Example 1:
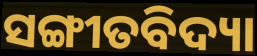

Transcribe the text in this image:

ସଙ୍ଗୀତବିଦ୍ୟା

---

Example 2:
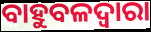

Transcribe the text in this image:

ବାହୁବଳଦ୍ୱାରା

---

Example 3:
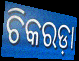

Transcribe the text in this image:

ଚିକରଡ଼ା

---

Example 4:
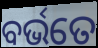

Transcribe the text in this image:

ବର୍ଭତେ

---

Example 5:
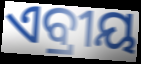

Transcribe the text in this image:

ଏବ୍ରୀୟ